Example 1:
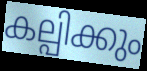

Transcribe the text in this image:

കല്പിക്കും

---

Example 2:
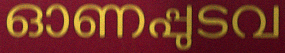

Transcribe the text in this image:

ഓണപ്പുടവ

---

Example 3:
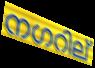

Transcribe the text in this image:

നഗറില്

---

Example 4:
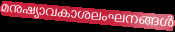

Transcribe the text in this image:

മനുഷ്യാവകാശലംഘനങ്ങൾ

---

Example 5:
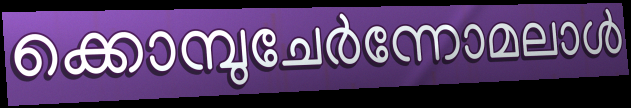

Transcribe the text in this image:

ക്കൊമ്പുചേർന്നോമലാൾ